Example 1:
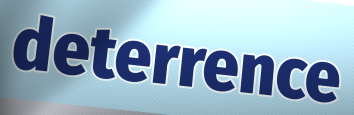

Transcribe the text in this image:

deterrence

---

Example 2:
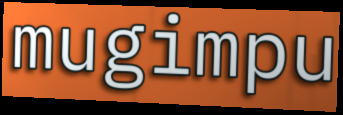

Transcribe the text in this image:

mugimpu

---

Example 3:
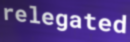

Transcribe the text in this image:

relegated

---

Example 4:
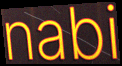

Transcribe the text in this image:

nabi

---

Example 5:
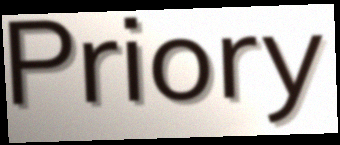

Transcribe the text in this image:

Priory